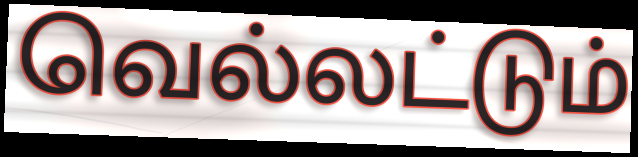
வெல்லட்டும்